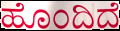
ಹೊಂದಿದೆ